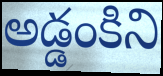
అడ్డంకిని